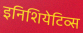
इनिशियेटिव्स